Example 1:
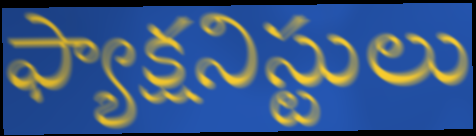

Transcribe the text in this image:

ఫ్యాక్షనిస్టులు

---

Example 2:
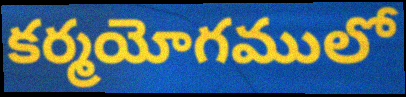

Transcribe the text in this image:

కర్మయోగములో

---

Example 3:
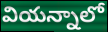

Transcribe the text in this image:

వియన్నాలో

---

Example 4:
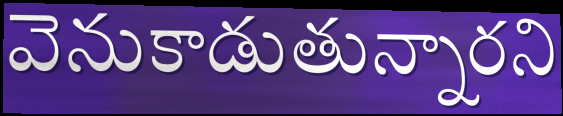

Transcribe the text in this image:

వెనుకాడుతున్నారని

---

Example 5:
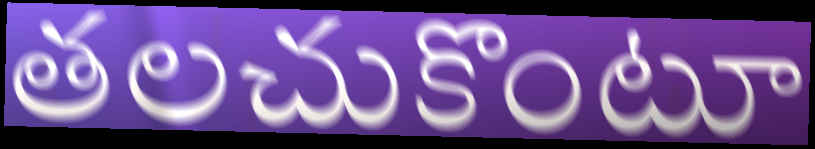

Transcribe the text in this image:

తలచుకొంటూ